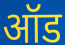
ऑड